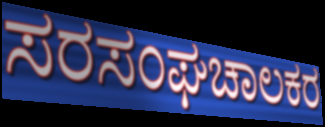
ಸರಸಂಘಚಾಲಕರ